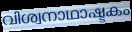
വിശ്വനാഥാഷ്ടകം